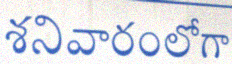
శనివారంలోగా